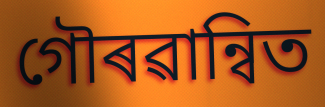
গৌৰৱান্বিত